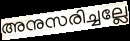
അനുസരിച്ചല്ലേ